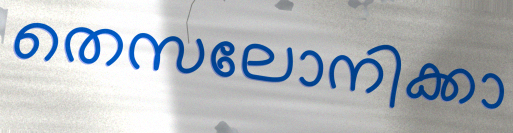
തെസലോനിക്കാ